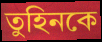
তুহিনকে